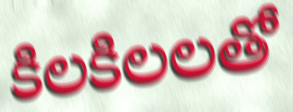
కిలకిలలతో